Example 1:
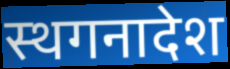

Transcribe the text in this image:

स्थगनादेश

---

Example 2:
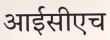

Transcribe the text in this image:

आईसीएच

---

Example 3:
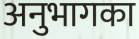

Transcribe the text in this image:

अनुभागका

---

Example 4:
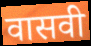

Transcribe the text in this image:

वासवी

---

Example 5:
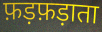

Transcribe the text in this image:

फ़ड़फ़ड़ाता